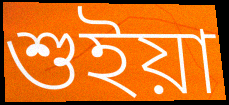
শুইয়া